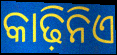
କାଢ଼ିନିଏ